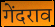
गेंदराव